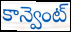
కాన్వెంట్